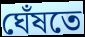
ঘেঁষতে